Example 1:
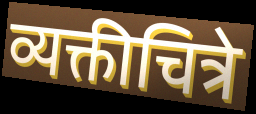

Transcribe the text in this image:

व्यक्तीचित्रे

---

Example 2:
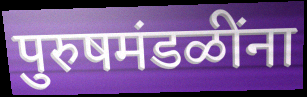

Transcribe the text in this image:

पुरुषमंडळींना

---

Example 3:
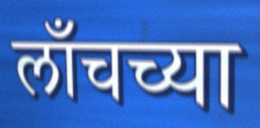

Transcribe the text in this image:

लाँचच्या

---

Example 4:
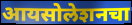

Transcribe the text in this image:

आयसोलेशनचा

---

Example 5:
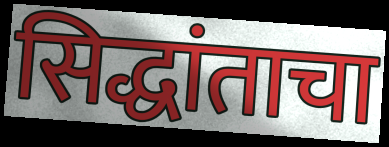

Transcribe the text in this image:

सिद्धांताचा